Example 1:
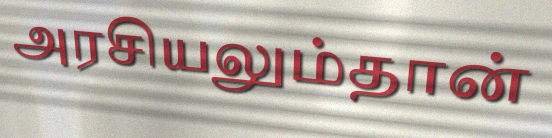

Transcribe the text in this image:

அரசியலும்தான்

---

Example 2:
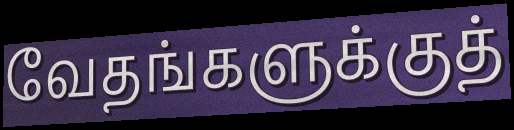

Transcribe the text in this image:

வேதங்களுக்குத்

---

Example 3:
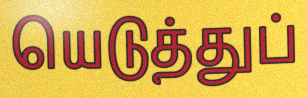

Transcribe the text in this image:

யெடுத்துப்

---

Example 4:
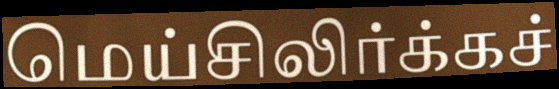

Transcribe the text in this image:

மெய்சிலிர்க்கச்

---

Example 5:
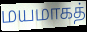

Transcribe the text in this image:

மயமாகத்